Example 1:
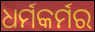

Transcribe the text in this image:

ଧର୍ମକର୍ମର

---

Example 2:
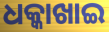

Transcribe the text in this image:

ଧକ୍କାଖାଇ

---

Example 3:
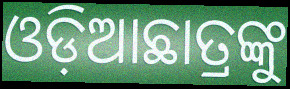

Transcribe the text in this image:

ଓଡ଼ିଆଛାତ୍ରଙ୍କୁ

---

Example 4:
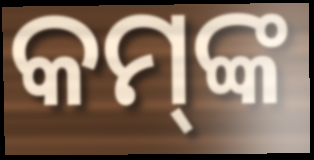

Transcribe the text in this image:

କମ୍‌ଙ୍କ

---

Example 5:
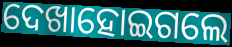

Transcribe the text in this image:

ଦେଖାହୋଇଗଲେ